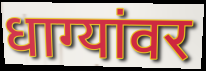
धाग्यांवर